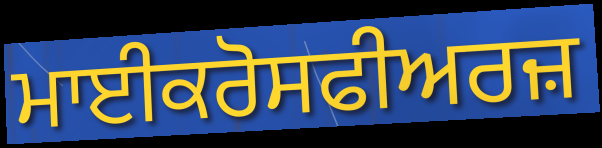
ਮਾਈਕਰੋਸਫੀਅਰਜ਼